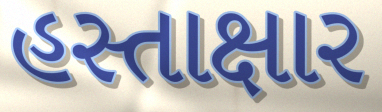
હસ્તાક્ષાર